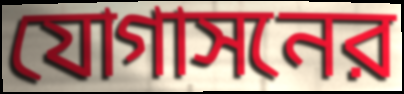
যোগাসনের